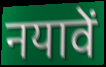
नयावें